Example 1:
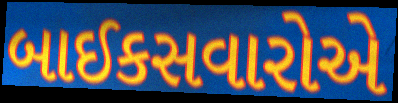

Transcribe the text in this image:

બાઈકસવારોએ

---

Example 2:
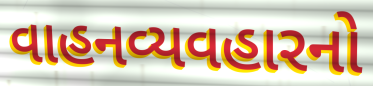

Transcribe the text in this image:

વાહનવ્યવહારનો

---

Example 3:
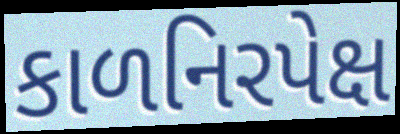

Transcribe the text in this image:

કાળનિરપેક્ષ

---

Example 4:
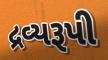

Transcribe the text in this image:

દ્રવ્યરૂપી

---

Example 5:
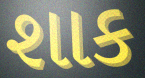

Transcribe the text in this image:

શાક